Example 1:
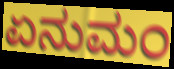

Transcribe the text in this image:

ಏನುಮಂ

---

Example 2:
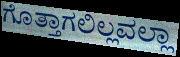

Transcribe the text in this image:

ಗೊತ್ತಾಗಲಿಲ್ಲವಲ್ಲಾ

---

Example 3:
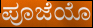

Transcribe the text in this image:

ಪೂಜೆಯೊ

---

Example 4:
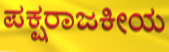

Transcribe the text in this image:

ಪಕ್ಷರಾಜಕೀಯ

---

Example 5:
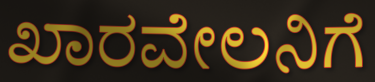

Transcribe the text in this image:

ಖಾರವೇಲನಿಗೆ